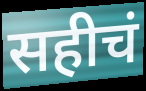
सहीचं